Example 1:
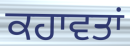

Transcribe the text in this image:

ਕਹਾਵਤਾਂ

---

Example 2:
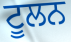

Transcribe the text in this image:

ਟੂਲਨ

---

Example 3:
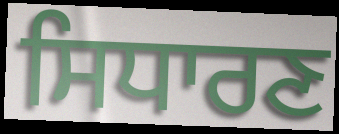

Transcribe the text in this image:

ਸਿਧਾਰਣ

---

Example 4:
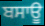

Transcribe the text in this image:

ਬਸਾਊ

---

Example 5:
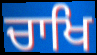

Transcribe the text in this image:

ਚਾਖਿ